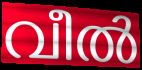
വീൽ